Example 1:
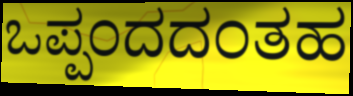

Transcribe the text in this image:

ಒಪ್ಪಂದದಂತಹ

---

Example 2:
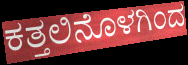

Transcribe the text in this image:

ಕತ್ತಲಿನೊಳಗಿಂದ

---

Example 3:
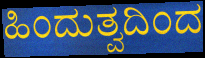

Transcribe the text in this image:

ಹಿಂದುತ್ವದಿಂದ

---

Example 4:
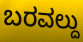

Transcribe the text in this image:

ಬರವಲ್ದು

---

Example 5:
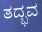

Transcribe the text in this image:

ತದ್ಭವ